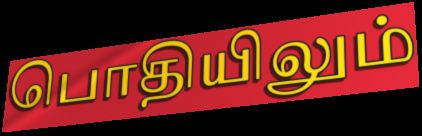
பொதியிலும்